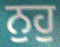
ਨੁਹੁ